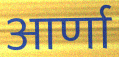
आर्णा